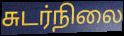
சுடர்நிலை